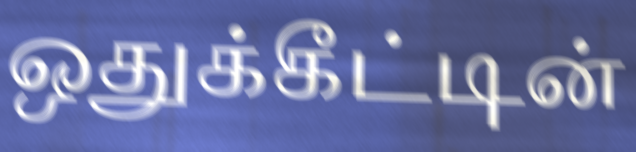
ஒதுக்கீட்டின்